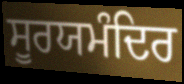
ਸੂਰਯਮੰਦਿਰ